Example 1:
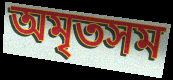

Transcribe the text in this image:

অমৃতসম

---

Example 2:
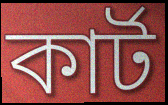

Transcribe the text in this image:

কার্ট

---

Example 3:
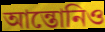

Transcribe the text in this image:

আন্তোনিও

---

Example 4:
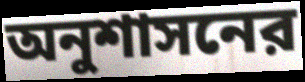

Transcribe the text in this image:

অনুশাসনের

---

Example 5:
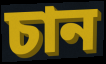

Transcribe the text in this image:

চান